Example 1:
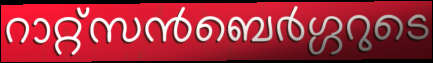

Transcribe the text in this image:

റാറ്റ്സൻബെർഗ്ഗറുടെ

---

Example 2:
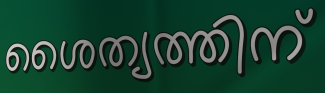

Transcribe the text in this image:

ശൈത്യത്തിന്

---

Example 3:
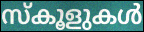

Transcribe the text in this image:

സ്കൂളുകൾ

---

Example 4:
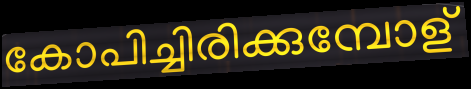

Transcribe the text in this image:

കോപിച്ചിരിക്കുമ്പോള്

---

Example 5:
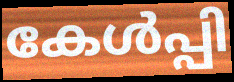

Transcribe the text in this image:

കേൾപ്പി